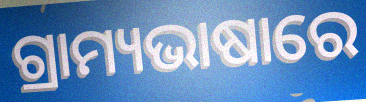
ଗ୍ରାମ୍ୟଭାଷାରେ